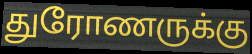
துரோணருக்கு